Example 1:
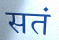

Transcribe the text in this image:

सतं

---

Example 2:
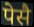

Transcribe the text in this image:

पेसै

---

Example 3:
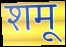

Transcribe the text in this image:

शमू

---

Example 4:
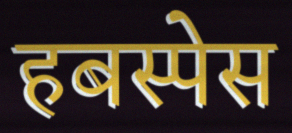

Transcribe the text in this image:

हबस्पेस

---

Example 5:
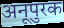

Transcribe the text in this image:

अनूपुरक